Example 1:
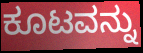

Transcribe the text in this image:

ಕೂಟವನ್ನು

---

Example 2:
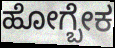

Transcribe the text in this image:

ಹೋಗ್ಬೇಕ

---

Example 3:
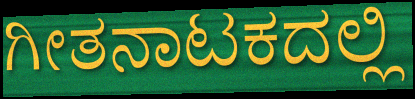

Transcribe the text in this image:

ಗೀತನಾಟಕದಲ್ಲಿ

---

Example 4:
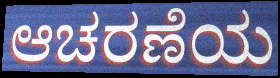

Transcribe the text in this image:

ಆಚರಣೆಯ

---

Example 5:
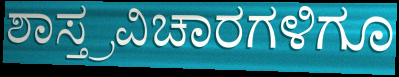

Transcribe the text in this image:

ಶಾಸ್ತ್ರವಿಚಾರಗಳಿಗೂ